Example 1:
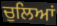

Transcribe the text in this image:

ਚੁਲਿਆਂ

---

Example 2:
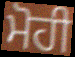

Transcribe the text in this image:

ਮੋਹੀ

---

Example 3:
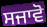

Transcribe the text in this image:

ਸਜਾਵੋ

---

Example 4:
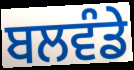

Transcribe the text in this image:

ਬਲਵੰਡੇ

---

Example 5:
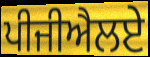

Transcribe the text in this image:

ਪੀਜੀਐਲਏ